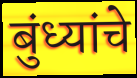
बुंध्यांचे